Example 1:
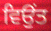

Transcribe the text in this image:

ਵਿਉਂਤ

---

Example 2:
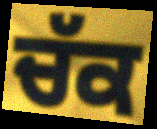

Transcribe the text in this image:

ਚੱਕ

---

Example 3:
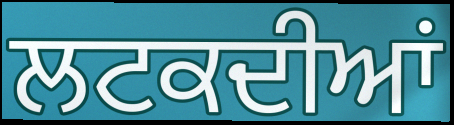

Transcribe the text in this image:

ਲਟਕਦੀਆਂ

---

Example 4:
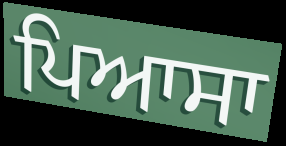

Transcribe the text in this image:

ਪਿਆਸਾ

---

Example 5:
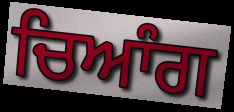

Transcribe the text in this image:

ਚਿਆੰਗ